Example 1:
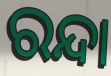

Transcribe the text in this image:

ରନ୍ଦା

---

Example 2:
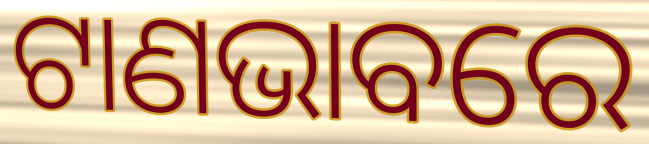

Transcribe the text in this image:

ଟାଣଭାବରେ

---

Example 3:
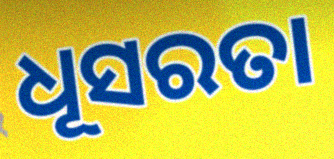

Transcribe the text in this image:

ଧୂସରତା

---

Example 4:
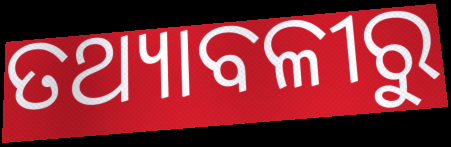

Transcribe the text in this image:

ତଥ୍ୟାବଳୀରୁ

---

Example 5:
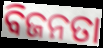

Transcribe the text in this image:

ବିଜନତା